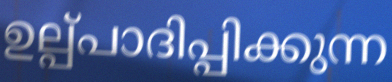
ഉല്പ്പാദിപ്പിക്കുന്ന